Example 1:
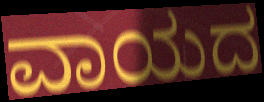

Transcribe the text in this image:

ವಾಯದ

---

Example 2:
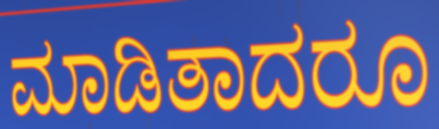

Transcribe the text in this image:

ಮಾಡಿತಾದರೂ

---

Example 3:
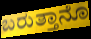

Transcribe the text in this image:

ಬರುತ್ತಾನೊ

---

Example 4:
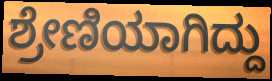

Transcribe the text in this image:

ಶ್ರೇಣಿಯಾಗಿದ್ದು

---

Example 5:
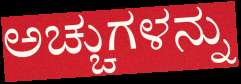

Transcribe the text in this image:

ಅಚ್ಚುಗಳನ್ನು